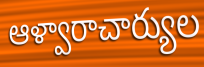
ఆళ్వారాచార్యుల